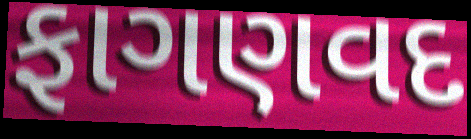
ફાગણવદ